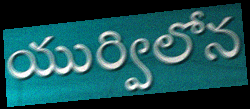
యుర్విలోన